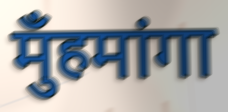
मुँहमांगा